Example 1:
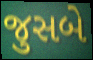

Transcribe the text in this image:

જુસબે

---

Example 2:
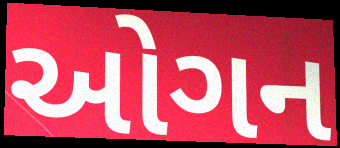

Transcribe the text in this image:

ઓગન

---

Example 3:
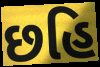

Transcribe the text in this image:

છહિ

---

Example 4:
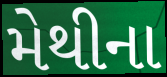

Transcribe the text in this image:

મેથીના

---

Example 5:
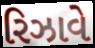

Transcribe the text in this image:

રિઝાવે